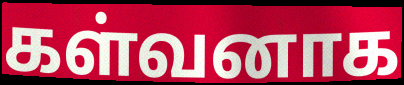
கள்வனாக